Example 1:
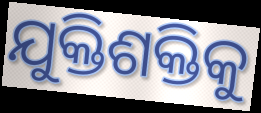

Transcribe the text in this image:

ଯୁକ୍ତିଶକ୍ତିକୁ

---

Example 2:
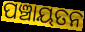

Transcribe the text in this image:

ପଞ୍ଚାୟତନ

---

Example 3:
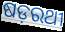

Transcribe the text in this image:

ଷଡ଼ରଥୀ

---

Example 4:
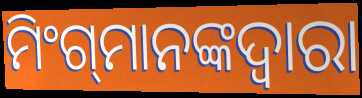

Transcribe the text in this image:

ମିଂଗ୍‍ମାନଙ୍କଦ୍ୱାରା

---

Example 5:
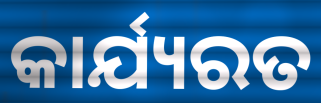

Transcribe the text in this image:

କାର୍ଯ୍ୟରତ